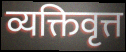
व्यक्तिवृत्त